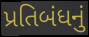
પ્રતિબંધનું